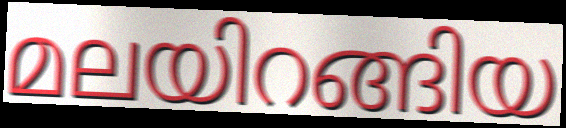
മലയിറങ്ങിയ